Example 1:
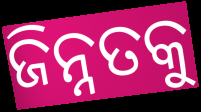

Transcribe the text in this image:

ଜିନ୍ନତକୁ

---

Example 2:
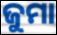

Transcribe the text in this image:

ଜୁମା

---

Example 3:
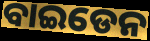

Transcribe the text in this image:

ବାଇଡେନ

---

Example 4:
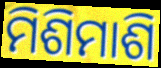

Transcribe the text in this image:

ମିଶିମାଶି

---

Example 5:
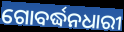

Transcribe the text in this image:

ଗୋବର୍ଦ୍ଧନଧାରୀ